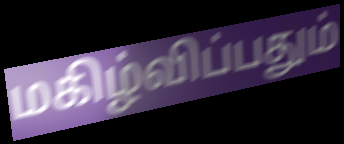
மகிழ்விப்பதும்